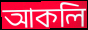
আকলি